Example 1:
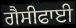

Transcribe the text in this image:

ਗੈਸੀਫਾਈ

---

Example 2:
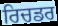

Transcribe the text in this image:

ਰਿਚਡਰ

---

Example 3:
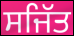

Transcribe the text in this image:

ਸਜਿੱਤ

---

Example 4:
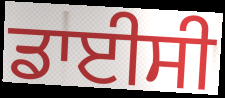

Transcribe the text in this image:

ਡਾਈਸੀ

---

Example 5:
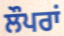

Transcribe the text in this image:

ਲੌਪਰਾਂ